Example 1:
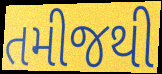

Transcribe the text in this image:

તમીજથી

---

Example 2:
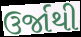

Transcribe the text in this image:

ઉર્જાથી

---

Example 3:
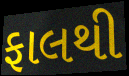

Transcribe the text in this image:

ફાલથી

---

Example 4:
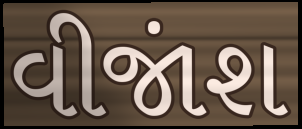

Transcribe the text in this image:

વીજાંશ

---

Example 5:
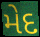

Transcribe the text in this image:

મેદ